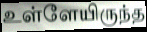
உள்ளேயிருந்த